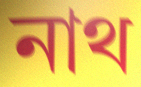
নাথ